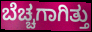
ಬೆಚ್ಚಗಾಗಿತ್ತು